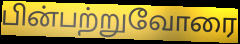
பின்பற்றுவோரை